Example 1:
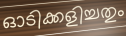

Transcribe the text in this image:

ഓടിക്കളിച്ചതും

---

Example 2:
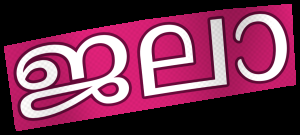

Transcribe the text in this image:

ജലാ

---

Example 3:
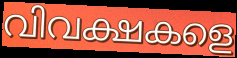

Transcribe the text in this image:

വിവക്ഷകളെ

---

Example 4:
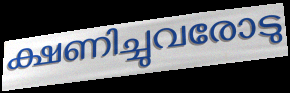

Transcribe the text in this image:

ക്ഷണിച്ചുവരോടു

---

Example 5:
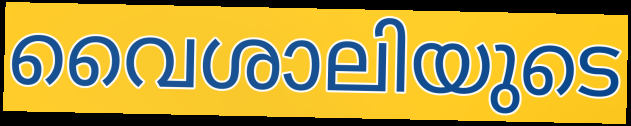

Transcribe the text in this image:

വൈശാലിയുടെ